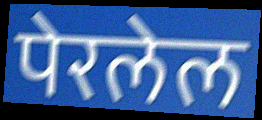
पेरलेल